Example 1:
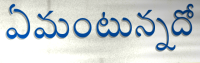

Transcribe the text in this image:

ఏమంటున్నదో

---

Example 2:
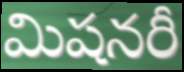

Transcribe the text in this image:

మిషనరీ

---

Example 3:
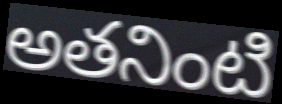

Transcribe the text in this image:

అతనింటి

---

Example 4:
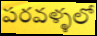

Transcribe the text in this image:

పరవళ్ళలో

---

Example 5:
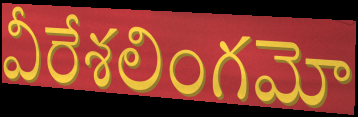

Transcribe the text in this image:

వీరేశలింగమో